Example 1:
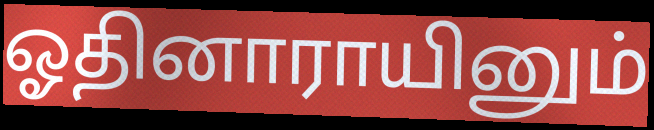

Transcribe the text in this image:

ஓதினாராயினும்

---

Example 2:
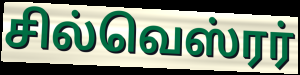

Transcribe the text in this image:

சில்வெஸ்ரர்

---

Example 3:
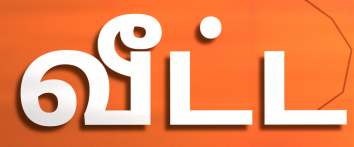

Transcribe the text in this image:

வீட்ட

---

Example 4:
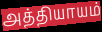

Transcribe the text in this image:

அத்தியாயம்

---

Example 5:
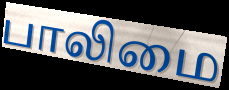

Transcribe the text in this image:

பாலிமை